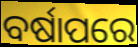
ବର୍ଷାପରେ